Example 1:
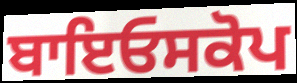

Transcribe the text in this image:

ਬਾਇਓਸਕੋਪ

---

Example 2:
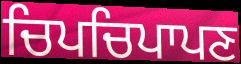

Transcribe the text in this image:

ਚਿਪਚਿਪਾਪਣ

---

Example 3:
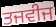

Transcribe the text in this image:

ਤਜਵੀਜ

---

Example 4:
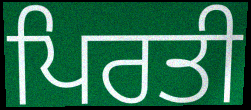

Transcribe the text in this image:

ਪਿਰਤੀ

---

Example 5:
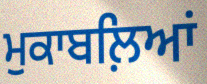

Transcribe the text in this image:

ਮੁਕਾਬਲ਼ਿਆਂ